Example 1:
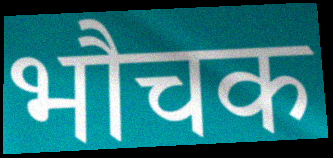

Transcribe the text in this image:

भौचक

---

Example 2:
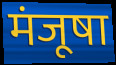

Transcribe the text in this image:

मंजूषा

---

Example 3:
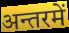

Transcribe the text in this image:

अन्तरमें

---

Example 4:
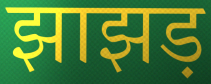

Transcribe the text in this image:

झाझड़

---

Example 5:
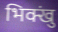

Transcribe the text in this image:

भिक्खुं